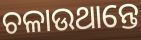
ଚଳାଉଥାନ୍ତେ